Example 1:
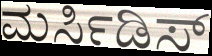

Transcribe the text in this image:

ಮರ್ಸಿಡಿಸ್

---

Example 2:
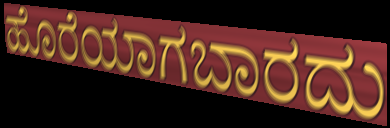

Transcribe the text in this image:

ಹೊರೆಯಾಗಬಾರದು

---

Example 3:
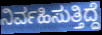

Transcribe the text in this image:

ನಿರ್ವಹಿಸುತ್ತಿದ್ದೆ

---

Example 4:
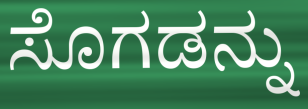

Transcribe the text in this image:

ಸೊಗಡನ್ನು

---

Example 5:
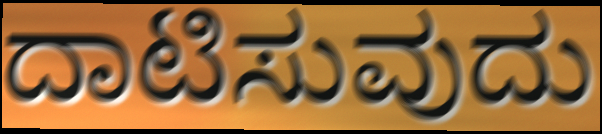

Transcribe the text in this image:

ದಾಟಿಸುವುದು